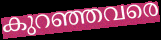
കുറഞ്ഞവരെ